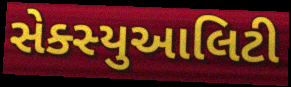
સેક્સ્યુઆલિટી